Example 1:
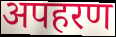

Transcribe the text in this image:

अपहरण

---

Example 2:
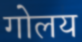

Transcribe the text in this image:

गोलय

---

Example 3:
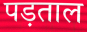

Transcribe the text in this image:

पड़ताल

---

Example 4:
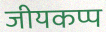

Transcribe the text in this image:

जीयकप्प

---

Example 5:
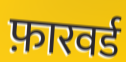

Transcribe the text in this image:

फ़ारवर्ड